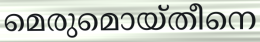
മെരുമൊയ്തീനെ